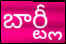
బార్ట్లీ